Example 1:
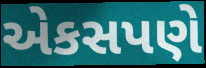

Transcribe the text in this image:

એકસપણે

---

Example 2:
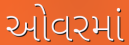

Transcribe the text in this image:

ઓવરમાં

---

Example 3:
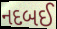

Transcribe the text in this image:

નદબઈ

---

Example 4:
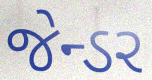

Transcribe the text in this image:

જેન્ડર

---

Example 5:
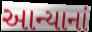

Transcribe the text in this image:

આન્યાનાં